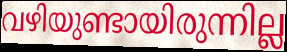
വഴിയുണ്ടായിരുന്നില്ല